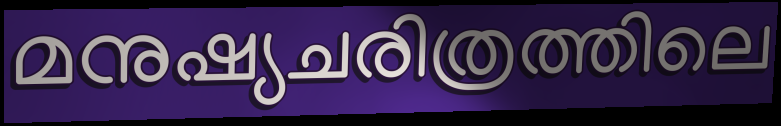
മനുഷ്യചരിത്രത്തിലെ